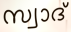
സ്വാദ്